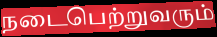
நடைபெற்றுவரும்